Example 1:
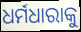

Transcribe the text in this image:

ଧର୍ମଧାରାକୁ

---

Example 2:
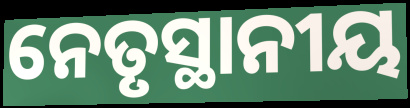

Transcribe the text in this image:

ନେତୃସ୍ଥାନୀୟ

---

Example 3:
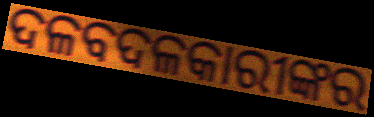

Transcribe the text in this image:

ଦଳବଦଳକାରୀଙ୍କର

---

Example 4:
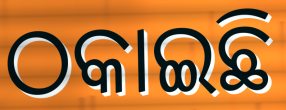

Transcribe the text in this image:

ଠକାଇଛି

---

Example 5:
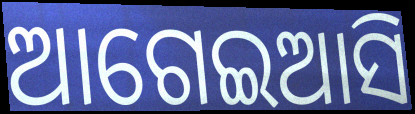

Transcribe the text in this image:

ଆଗେଇଆସି